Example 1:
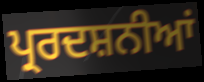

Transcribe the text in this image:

ਪ੍ਰਰਦਸ਼ਨੀਆਂ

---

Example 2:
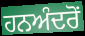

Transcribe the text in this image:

ਹਨਅੰਦਰੋਂ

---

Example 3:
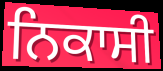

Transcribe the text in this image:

ਨਿਕਾਸੀ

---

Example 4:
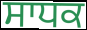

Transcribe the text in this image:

ਸਾਧਕ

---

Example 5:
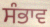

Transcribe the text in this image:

ਸੰਭਾਵ